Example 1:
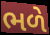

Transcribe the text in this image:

ભળે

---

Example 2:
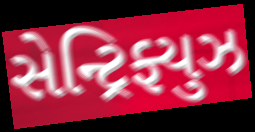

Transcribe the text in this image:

સેન્ટ્રિફ્યુઝ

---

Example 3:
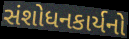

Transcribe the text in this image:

સંશોધનકાર્યનો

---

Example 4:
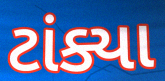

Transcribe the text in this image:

ટાંક્યા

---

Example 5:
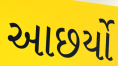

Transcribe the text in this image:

આછર્યો